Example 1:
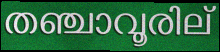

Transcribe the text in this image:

തഞ്ചാവൂരില്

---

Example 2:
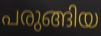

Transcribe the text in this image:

പരുങ്ങിയ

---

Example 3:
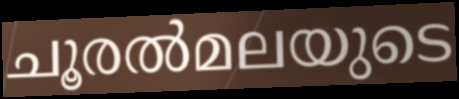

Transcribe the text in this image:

ചൂരൽമലയുടെ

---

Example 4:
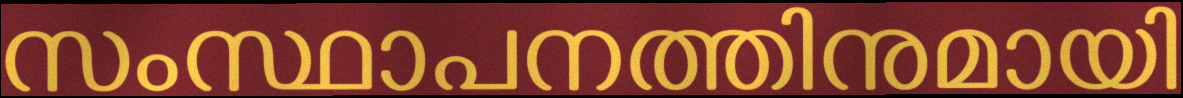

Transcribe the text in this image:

സംസ്ഥാപനത്തിനുമായി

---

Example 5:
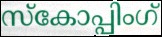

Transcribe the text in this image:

സ്കോപ്പിംഗ്